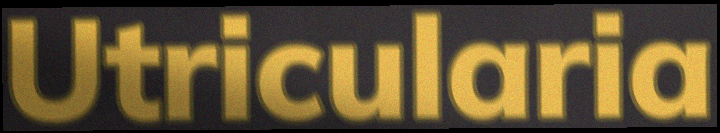
Utricularia